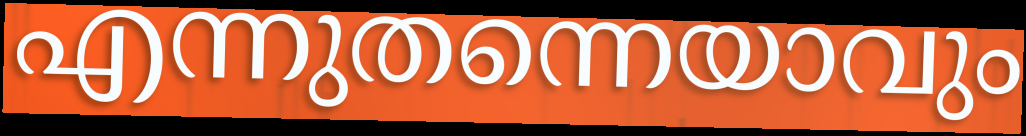
എന്നുതന്നെയാവും